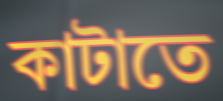
কাটাতে